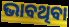
ଭାବଥିବା